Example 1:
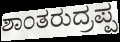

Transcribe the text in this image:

ಶಾಂತರುದ್ರಪ್ಪ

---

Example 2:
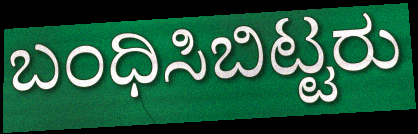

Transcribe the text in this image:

ಬಂಧಿಸಿಬಿಟ್ಟರು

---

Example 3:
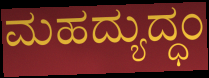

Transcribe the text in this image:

ಮಹದ್ಯುದ್ಧಂ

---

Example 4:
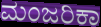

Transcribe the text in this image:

ಮಂಜರಿಕಾ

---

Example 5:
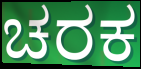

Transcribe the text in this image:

ಚರಕ